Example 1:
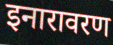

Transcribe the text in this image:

इनारावरण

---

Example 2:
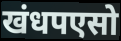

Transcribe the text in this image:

खंधपएसो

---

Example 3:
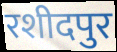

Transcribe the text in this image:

रशीदपुर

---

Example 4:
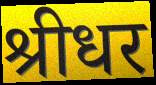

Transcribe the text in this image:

श्रीधर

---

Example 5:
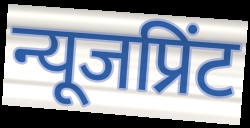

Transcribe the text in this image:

न्यूजप्रिंट